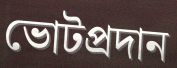
ভোটপ্রদান